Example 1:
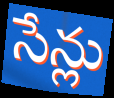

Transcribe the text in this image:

సేన్లు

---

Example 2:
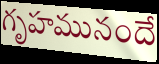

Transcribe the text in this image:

గృహమునందే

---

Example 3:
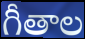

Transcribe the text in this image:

గీతాల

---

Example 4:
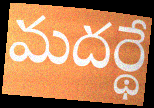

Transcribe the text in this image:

మదర్థే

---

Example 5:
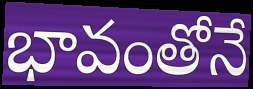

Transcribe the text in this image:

భావంతోనే